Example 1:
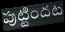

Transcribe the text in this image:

పుట్టిందట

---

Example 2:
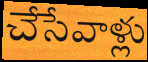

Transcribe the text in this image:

చేసేవాళ్లు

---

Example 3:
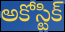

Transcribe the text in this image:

అకోస్టిక్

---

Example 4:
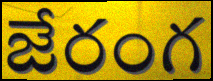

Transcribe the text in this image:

జేరంగ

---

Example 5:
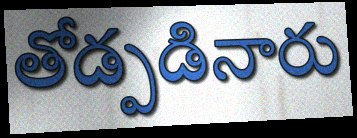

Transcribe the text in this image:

తోడ్పడినారు